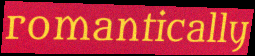
romantically